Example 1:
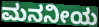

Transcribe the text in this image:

ಮನನೀಯ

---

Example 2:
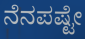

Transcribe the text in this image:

ನೆನಪಷ್ಟೇ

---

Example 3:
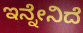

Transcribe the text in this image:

ಇನ್ನೇನಿದೆ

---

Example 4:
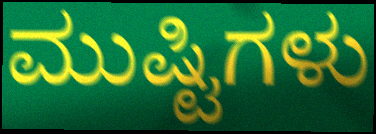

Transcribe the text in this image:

ಮುಷ್ಟಿಗಳು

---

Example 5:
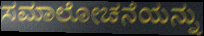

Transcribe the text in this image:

ಸಮಾಲೋಚನೆಯನ್ನು